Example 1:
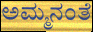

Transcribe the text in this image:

ಅಮ್ಮನಂತೆ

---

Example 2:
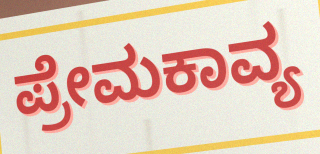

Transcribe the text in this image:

ಪ್ರೇಮಕಾವ್ಯ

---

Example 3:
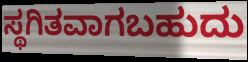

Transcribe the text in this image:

ಸ್ಥಗಿತವಾಗಬಹುದು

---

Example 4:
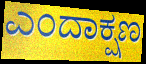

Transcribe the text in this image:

ಎಂದಾಕ್ಷಣ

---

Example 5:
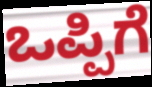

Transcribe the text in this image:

ಒಪ್ಪಿಗೆ